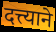
दत्त्याने